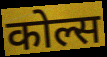
कोल्स